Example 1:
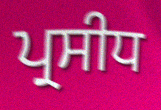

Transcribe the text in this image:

ਪ੍ਰਸੀਧ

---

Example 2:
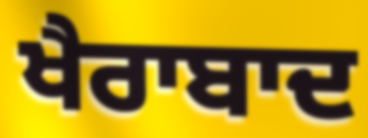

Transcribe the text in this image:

ਖੈਰਾਬਾਦ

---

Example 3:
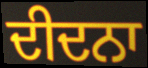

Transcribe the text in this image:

ਦੀਦਨਾ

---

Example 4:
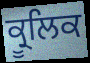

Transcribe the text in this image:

ਕ੍ਰੂਲਿਕ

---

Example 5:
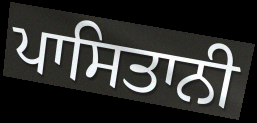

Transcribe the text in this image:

ਪਾਸਿਤਾਨੀ